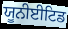
ਯੂਨੀਈਟਿਡ